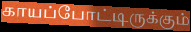
காயப்போட்டிருக்கும்